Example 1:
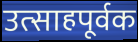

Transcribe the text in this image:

उत्‍साहपूर्वक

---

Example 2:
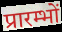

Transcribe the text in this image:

प्रारम्भों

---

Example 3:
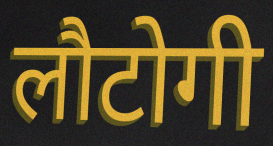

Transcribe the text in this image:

लौटोगी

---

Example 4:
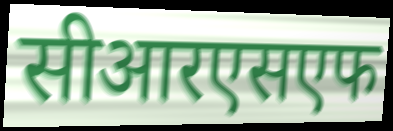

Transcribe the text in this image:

सीआरएसएफ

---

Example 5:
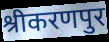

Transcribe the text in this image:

श्रीकरणपुर